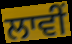
ਲਾਵੀਂ